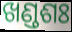
ଖଣ୍ଡଶଃ